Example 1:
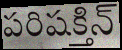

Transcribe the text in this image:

పరిషక్తిన్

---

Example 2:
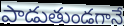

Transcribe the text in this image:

పాడుతుండగానే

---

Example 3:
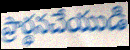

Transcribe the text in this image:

ప్రార్థనచేయుడి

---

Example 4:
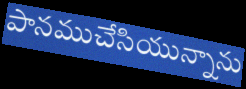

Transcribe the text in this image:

పానముచేసియున్నాను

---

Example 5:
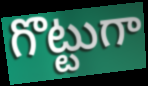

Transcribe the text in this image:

గొట్టుగా